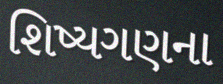
શિષ્યગણના